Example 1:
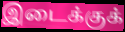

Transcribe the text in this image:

இடைக்குக்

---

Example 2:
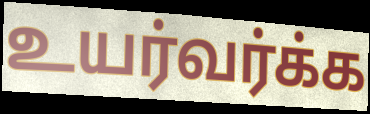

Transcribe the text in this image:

உயர்வர்க்க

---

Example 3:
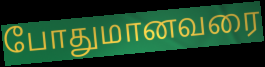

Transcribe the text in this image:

போதுமானவரை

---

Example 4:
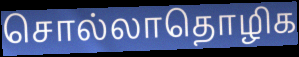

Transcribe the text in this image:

சொல்லாதொழிக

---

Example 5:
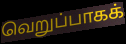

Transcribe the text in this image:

வெறுப்பாகக்